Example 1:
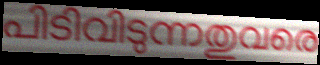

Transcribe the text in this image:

പിടിവിടുന്നതുവരെ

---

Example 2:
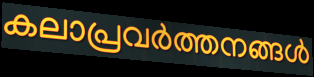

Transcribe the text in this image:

കലാപ്രവർത്തനങ്ങൾ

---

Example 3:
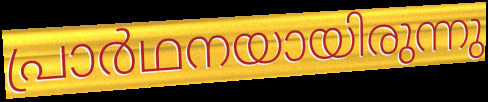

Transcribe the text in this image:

പ്രാർഥനയായിരുന്നു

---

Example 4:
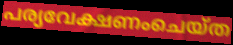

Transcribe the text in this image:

പര്യവേക്ഷണംചെയ്ത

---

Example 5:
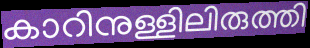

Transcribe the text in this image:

കാറിനുള്ളിലിരുത്തി